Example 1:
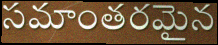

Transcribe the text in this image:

సమాంతరమైన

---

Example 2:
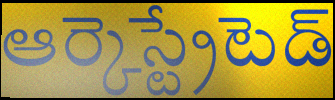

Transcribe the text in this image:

ఆర్కెస్ట్రేటెడ్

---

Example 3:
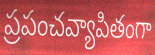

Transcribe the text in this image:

ప్రపంచవ్యాపితంగా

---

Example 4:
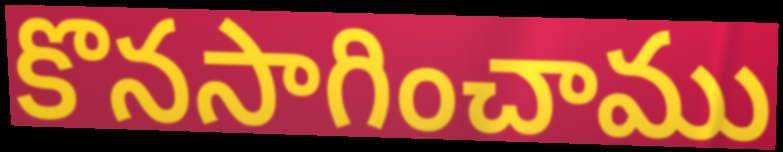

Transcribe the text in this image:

కొనసాగించాము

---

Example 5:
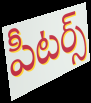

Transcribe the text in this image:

పీటర్స్